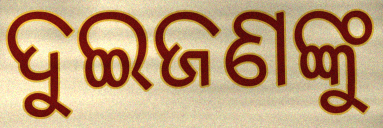
ଦୁଇଜଣଙ୍କୁ